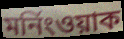
মর্নিংওয়াক